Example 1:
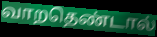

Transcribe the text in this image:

வாறதெண்டால்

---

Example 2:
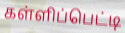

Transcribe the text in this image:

கள்ளிப்பெட்டி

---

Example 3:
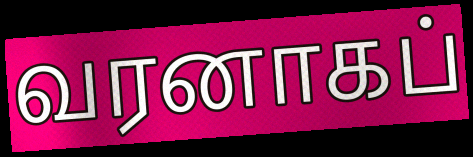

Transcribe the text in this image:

வரனாகப்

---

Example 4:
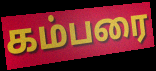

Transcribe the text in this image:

கம்பரை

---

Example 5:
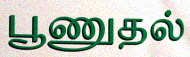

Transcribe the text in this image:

பூணுதல்